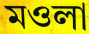
মওলা